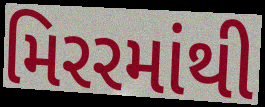
મિરરમાંથી